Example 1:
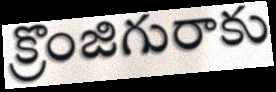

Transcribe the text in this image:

క్రొంజిగురాకు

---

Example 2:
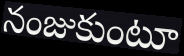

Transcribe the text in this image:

నంజుకుంటూ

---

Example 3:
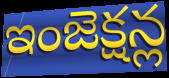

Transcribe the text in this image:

ఇంజెక్షన్ల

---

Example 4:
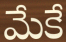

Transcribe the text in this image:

మేకే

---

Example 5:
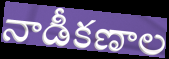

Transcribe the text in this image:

నాడీకణాల